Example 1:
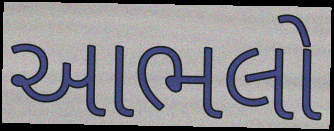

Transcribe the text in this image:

આભલો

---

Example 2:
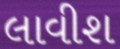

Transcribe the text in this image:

લાવીશ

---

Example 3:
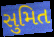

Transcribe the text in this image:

સુમિત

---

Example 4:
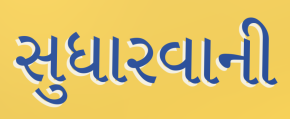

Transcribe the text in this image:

સુધારવાની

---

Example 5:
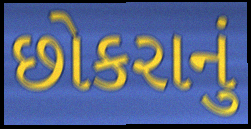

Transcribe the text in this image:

છોકરાનું